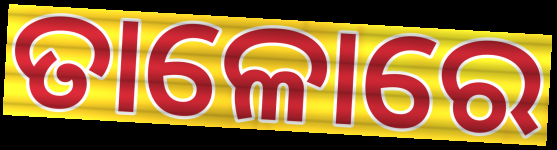
ତାଳୋରେ